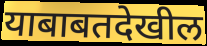
याबाबतदेखील